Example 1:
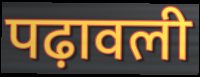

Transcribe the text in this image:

पढ़ावली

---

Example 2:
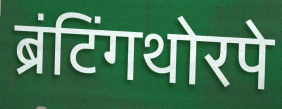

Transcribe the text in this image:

ब्रंटिंगथोरपे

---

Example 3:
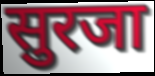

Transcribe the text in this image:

सुरजा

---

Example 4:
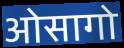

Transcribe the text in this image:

ओसागो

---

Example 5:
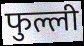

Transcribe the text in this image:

फुल्ली